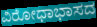
ವಿರೋಧಾಭಾಸದ